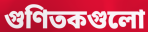
গুণিতকগুলো